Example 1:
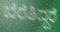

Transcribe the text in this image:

ಬೆರೆತಿದ್ದರೆ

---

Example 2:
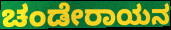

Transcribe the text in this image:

ಚಂಡೇರಾಯನ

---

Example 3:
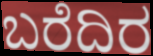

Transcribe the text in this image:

ಬರೆದಿರ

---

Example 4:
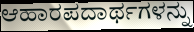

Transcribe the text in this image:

ಆಹಾರಪದಾರ್ಥಗಳನ್ನು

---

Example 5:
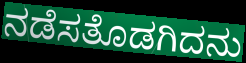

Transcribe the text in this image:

ನಡೆಸತೊಡಗಿದನು